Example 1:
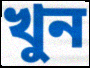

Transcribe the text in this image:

খুন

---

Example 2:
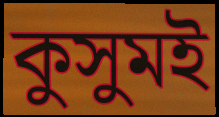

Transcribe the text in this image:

কুসুমই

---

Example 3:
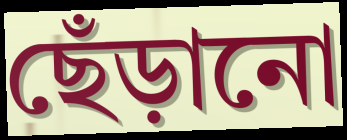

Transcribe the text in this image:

ছেঁড়ানো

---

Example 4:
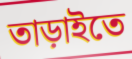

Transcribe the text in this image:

তাড়াইতে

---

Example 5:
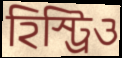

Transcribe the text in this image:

হিস্ট্রিও